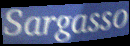
Sargasso